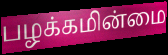
பழக்கமின்மை